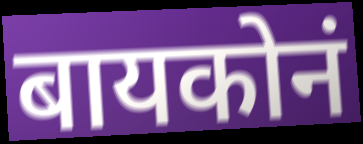
बायकोनं